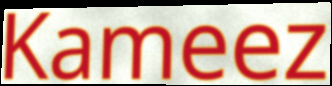
Kameez